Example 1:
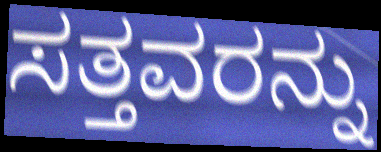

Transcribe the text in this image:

ಸತ್ತವರನ್ನು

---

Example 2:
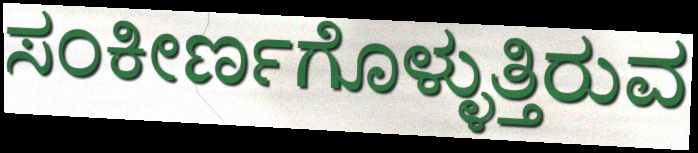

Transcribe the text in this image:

ಸಂಕೀರ್ಣಗೊಳ್ಳುತ್ತಿರುವ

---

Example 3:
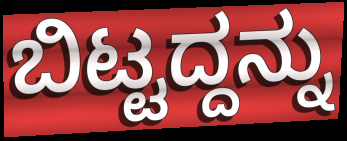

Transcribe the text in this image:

ಬಿಟ್ಟದ್ದನ್ನು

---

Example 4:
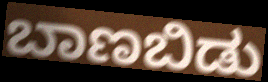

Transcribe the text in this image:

ಬಾಣಬಿಡು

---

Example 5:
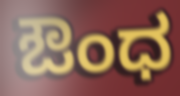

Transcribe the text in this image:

ಔಂಧ